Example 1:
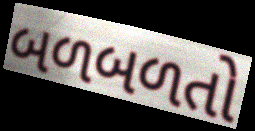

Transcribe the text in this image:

બળબળતો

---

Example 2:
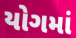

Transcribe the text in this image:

યોગમાં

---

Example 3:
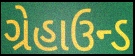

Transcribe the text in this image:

ગ્રેહાઉન્ડ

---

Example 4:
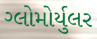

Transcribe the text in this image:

ગ્લોમોર્યુલર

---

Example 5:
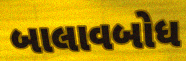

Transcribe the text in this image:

બાલાવબોધ